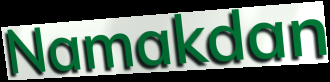
Namakdan